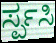
ರ್ಸ್ಪಸಿ